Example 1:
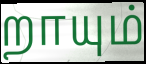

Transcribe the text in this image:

றாயும்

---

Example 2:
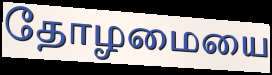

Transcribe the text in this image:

தோழமையை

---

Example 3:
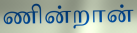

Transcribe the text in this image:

ணின்றான்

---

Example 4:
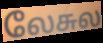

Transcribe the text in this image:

லேசுல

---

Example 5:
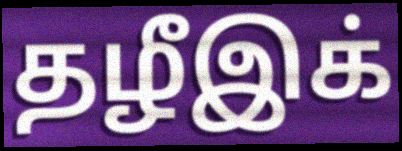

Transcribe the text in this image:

தழீஇக்